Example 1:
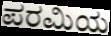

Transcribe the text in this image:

ಪರಮಿಯ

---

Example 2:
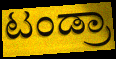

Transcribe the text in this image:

ಟಂಡ್ರಾ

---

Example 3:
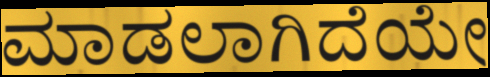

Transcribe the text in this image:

ಮಾಡಲಾಗಿದೆಯೇ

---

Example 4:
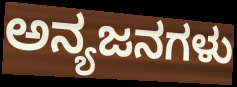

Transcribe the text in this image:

ಅನ್ಯಜನಗಳು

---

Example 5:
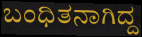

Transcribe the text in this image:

ಬಂಧಿತನಾಗಿದ್ದ